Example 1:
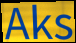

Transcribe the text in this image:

Aks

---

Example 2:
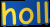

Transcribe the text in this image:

holl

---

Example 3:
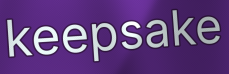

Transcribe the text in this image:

keepsake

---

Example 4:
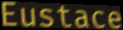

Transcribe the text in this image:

Eustace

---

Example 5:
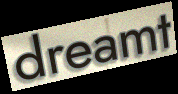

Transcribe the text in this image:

dreamt